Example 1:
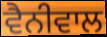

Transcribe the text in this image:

ਵੈਨੀਵਾਲ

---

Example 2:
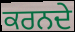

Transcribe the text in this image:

ਕਰਨਦੇ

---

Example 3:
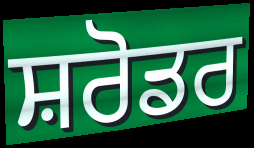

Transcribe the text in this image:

ਸ਼ਰੋਡਰ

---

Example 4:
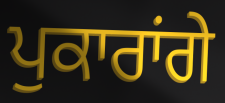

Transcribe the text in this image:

ਪੁਕਾਰਾਂਗੇ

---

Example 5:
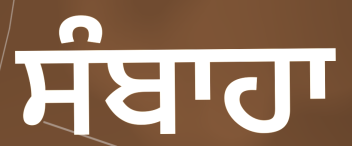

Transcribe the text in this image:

ਸੰਬਾਹਾ